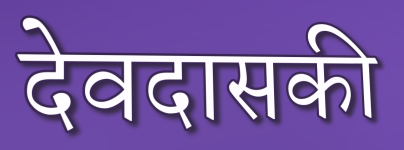
देवदासकी